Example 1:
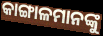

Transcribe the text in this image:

କାଙ୍ଗାଳମାନଙ୍କୁ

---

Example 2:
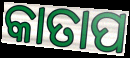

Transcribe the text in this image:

କାତାପ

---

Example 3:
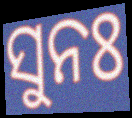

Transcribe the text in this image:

ସୁନଃ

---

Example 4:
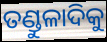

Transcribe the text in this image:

ତଣ୍ଡୁଳାଦିକୁ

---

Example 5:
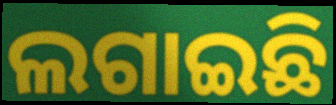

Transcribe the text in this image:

ଲଗାଇଛି